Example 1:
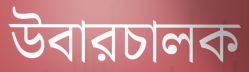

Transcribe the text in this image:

উবারচালক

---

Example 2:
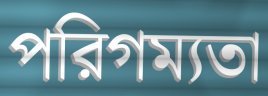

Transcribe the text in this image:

পরিগম্যতা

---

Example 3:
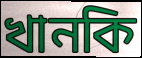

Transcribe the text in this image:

খানকি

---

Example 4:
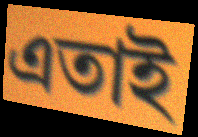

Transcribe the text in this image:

এতাই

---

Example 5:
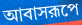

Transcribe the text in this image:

আবাসরূপে